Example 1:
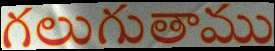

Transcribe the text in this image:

గలుగుతాము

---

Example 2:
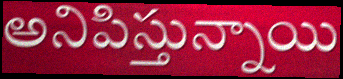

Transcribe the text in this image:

అనిపిస్తున్నాయి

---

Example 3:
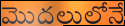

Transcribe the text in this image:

మొదలులోనే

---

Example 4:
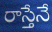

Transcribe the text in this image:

రాస్తేనే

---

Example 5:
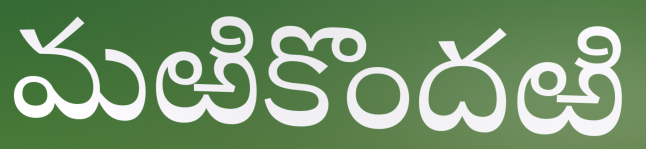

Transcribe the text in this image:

మఱికొందఱి